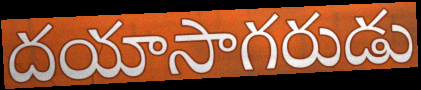
దయాసాగరుడు